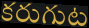
కరుగుట